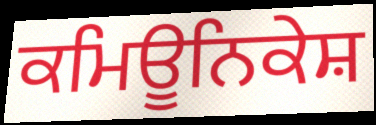
ਕਮਿਊਨਿਕੇਸ਼